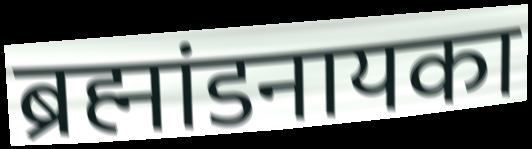
ब्रह्मांडनायका